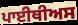
ਪਾਈਥੀਅਸ